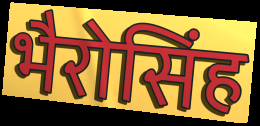
भैरोसिंह